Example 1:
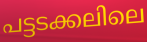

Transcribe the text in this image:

പട്ടടക്കലിലെ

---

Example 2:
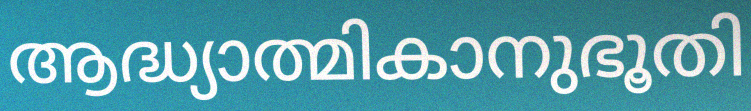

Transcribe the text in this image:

ആദ്ധ്യാത്മികാനുഭൂതി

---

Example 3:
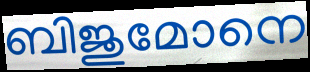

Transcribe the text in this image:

ബിജുമോനെ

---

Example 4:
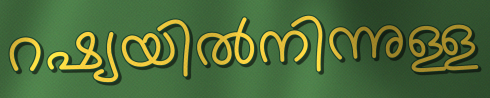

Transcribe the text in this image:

റഷ്യയിൽനിന്നുള്ള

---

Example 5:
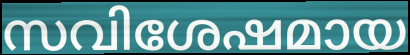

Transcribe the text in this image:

സവിശേഷമായ